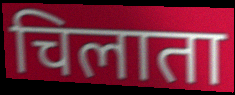
चिलाता